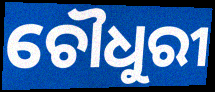
ଚୌଧୁରୀ